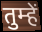
तुम्हें